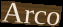
Arco